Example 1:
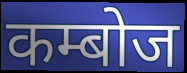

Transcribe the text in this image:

कम्बोज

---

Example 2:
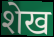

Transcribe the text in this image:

शेख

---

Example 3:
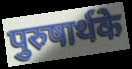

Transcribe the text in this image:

पुरुषार्थके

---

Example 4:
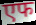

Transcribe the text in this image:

एफ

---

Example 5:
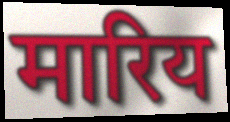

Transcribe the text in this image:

मारिय